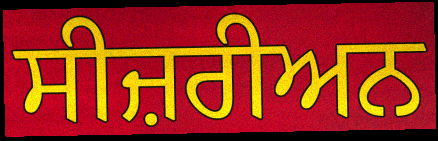
ਸੀਜ਼ਰੀਅਨ